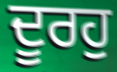
ਦੂਰਹੁ